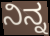
ನಿನ್ನ